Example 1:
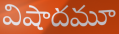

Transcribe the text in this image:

విషాదమూ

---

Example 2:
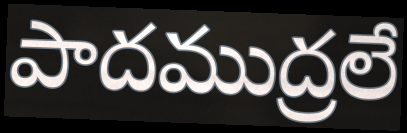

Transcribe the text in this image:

పాదముద్రలే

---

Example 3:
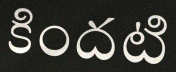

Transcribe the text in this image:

కిందటి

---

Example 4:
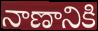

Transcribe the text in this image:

నాణానికి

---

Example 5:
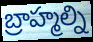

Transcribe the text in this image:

బ్రాహ్మల్ని